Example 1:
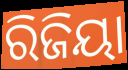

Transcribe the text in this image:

ରିଜିୟା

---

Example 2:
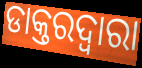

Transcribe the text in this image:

ଡାକ୍ତରଦ୍ୱାରା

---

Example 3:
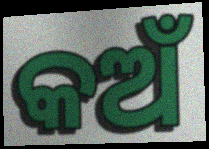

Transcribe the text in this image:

କଅଁ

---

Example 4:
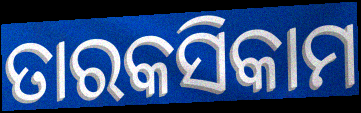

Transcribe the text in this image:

ତାରକସିକାମ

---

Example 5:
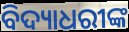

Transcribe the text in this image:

ବିଦ୍ୟାଧରୀଙ୍କ